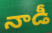
నాడీ